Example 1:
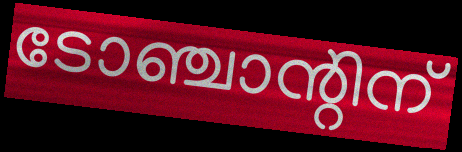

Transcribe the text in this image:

ടോഞ്ചാന്റിന്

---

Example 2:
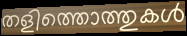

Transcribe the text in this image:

തളിത്തൊത്തുകൾ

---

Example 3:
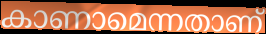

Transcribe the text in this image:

കാണാമെന്നതാണ്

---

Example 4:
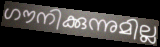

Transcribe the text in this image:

ഗൗനിക്കുന്നുമില്ല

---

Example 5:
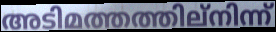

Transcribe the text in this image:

അടിമത്തത്തില്നിന്ന്